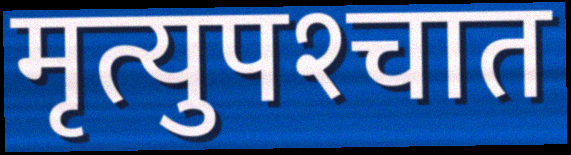
मृत्युपश्चात